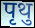
पृथु